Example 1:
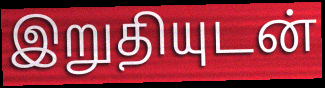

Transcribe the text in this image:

இறுதியுடன்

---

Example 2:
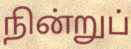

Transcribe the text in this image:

நின்றுப்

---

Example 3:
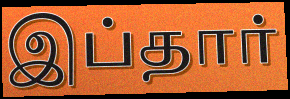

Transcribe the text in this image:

இப்தார்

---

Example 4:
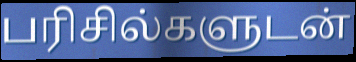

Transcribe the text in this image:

பரிசில்களுடன்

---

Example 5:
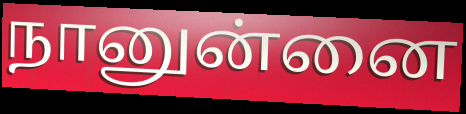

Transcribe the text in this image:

நானுன்னை